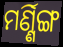
ମର୍ଣ୍ଣିଙ୍ଗ